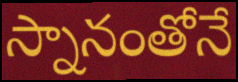
స్నానంతోనే